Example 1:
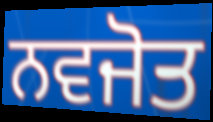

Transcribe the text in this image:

ਨਵਜੋਤ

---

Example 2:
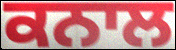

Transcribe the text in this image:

ਕਨਾਲ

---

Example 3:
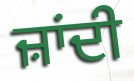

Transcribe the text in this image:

ਜ਼ਾਂਦੀ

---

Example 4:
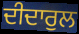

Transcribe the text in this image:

ਦੀਦਾਰੁਲ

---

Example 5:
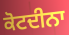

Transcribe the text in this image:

ਕੋਟਦੀਨਾ